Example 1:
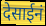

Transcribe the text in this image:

देसाईनं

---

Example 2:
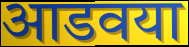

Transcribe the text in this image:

आडवया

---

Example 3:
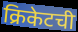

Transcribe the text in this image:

क्रिकेटची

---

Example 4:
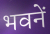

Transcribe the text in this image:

भवनें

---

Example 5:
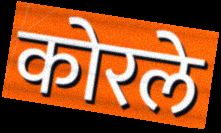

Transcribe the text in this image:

कोरले